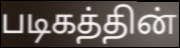
படிகத்தின்